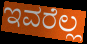
ಇವರೆಲ್ಲ